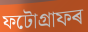
ফটোগ্ৰাফৰ